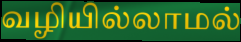
வழியில்லாமல்